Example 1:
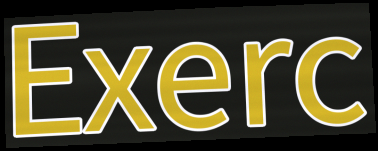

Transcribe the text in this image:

Exerc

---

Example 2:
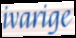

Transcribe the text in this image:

ivarige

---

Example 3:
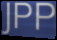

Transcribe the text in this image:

JPP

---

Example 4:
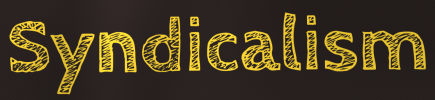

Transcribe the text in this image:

Syndicalism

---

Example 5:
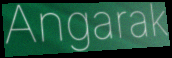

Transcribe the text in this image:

Angarak